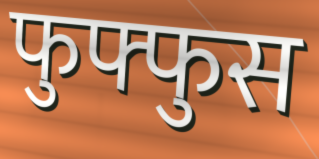
फुफ्फुस